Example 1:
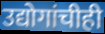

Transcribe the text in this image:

उद्योगांचीही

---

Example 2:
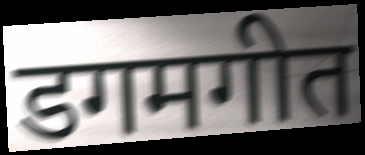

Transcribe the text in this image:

डगमगीत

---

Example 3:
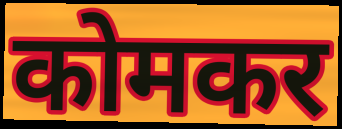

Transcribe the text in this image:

कोमकर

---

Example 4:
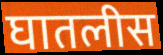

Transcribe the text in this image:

घातलीस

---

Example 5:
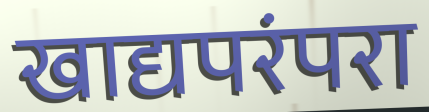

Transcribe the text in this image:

खाद्यपरंपरा